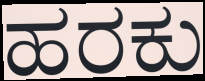
ಹರಕು